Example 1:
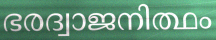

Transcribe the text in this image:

ഭരദ്വാജനിത്ഥം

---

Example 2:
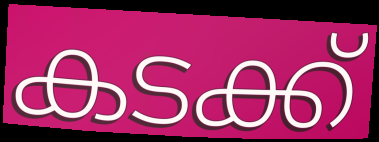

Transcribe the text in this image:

കടക്ക്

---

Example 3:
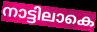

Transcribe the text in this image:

നാട്ടിലാകെ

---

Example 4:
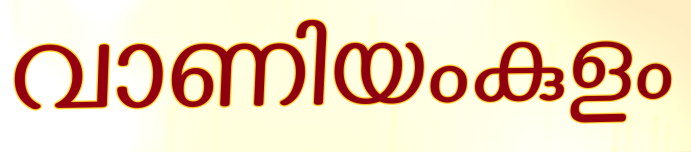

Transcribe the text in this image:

വാണിയംകുളം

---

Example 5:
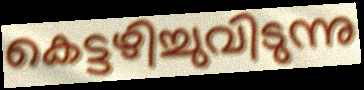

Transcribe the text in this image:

കെട്ടഴിച്ചുവിടുന്നു